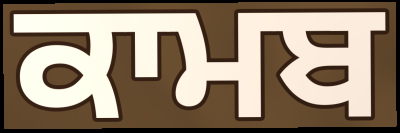
ਕਾਮਬ